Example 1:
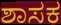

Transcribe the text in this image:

ಶಾಸಕ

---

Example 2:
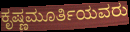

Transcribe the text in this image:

ಕೃಷ್ಣಮೂರ್ತಿಯವರು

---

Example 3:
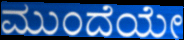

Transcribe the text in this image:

ಮುಂದೆಯೇ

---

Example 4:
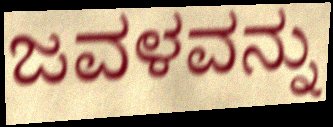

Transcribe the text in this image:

ಜವಳವನ್ನು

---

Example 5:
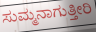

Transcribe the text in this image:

ಸುಮ್ಮನಾಗುತ್ತೀರಿ